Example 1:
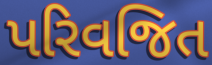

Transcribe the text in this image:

પરિવજિત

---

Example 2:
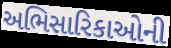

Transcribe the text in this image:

અભિસારિકાઓની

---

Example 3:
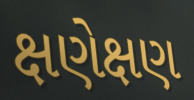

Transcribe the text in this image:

ક્ષણેક્ષણ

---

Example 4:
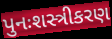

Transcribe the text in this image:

પુનઃશસ્ત્રીકરણ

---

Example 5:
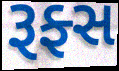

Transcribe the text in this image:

રૂફ્સ